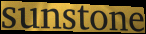
sunstone